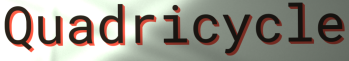
Quadricycle